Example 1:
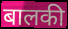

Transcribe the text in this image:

बालकी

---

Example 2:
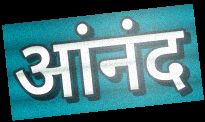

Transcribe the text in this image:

आंनंद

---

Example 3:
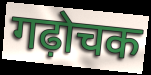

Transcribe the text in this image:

गढ़ोचक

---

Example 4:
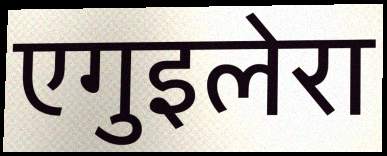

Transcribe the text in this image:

एगुइलेरा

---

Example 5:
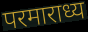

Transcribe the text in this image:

परमाराध्य